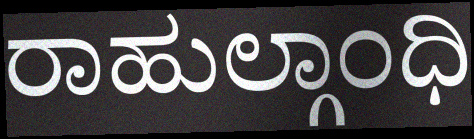
ರಾಹುಲ್ಗಾಂಧಿ